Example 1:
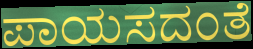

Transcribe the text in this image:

ಪಾಯಸದಂತೆ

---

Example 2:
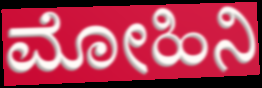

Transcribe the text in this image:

ಮೋಹಿನಿ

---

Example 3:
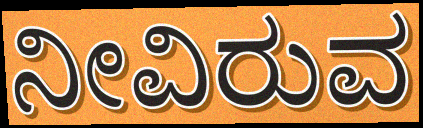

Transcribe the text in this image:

ನೀವಿರುವ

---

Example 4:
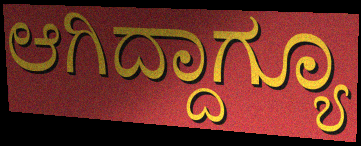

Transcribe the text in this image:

ಆಗಿದ್ದಾಗ್ಯೂ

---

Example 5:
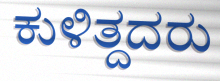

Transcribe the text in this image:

ಕುಳಿತ್ದದರು